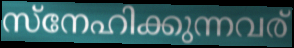
സ്നേഹിക്കുന്നവര്